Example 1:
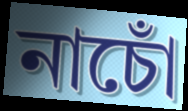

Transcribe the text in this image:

নাচোঁ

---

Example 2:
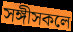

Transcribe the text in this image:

সঙ্গীসকলে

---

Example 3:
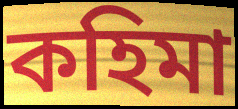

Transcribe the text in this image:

কহিমা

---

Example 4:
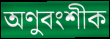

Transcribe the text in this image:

অণুবংশীক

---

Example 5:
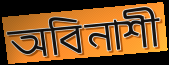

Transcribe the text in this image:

অবিনাশী